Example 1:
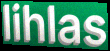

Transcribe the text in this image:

lihlas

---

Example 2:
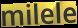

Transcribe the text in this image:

milele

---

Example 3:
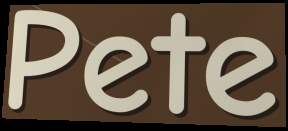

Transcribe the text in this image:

Pete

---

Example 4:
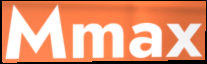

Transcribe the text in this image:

Mmax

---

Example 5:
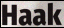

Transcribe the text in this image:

Haak